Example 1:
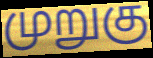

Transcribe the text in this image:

முறுகு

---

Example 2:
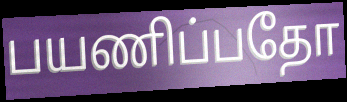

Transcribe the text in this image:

பயணிப்பதோ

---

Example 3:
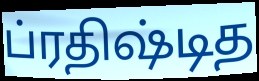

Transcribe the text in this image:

ப்ரதிஷ்டித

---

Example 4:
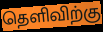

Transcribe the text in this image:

தெளிவிற்கு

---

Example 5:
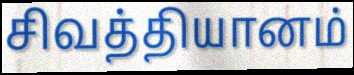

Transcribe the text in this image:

சிவத்தியானம்